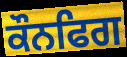
ਕੌਨਫਿਗ